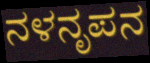
ನಳನೃಪನ